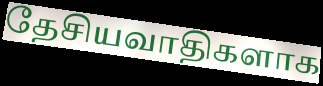
தேசியவாதிகளாக